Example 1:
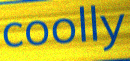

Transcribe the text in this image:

coolly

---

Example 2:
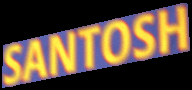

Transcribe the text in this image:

SANTOSH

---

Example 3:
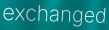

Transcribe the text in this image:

exchanged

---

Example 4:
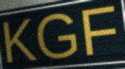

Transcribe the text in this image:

KGF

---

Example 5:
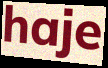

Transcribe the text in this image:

haje